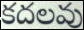
కదలవు